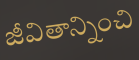
జీవితాన్నించి